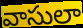
వాసులా